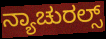
ನ್ಯಾಚುರಲ್ಸ್